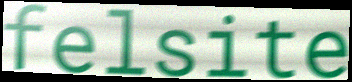
felsite